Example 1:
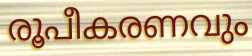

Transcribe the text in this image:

രൂപീകരണവും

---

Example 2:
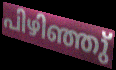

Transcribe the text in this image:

പിഴിഞ്ഞു്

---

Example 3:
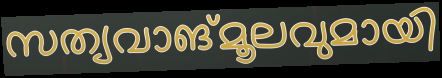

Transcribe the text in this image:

സത്യവാങ്മൂലവുമായി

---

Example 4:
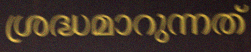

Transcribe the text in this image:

ശ്രദ്ധമാറുന്നത്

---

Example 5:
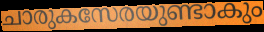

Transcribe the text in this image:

ചാരുകസേരയുണ്ടാകും